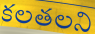
కలతలని